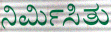
ನಿರ್ಮಿಸಿತು